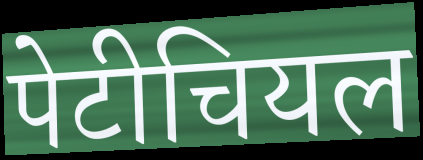
पेटीचियल